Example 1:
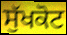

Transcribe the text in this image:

ਸੁੱਖਕੋਟ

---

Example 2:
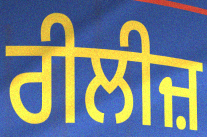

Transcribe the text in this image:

ਰੀਲੀਜ਼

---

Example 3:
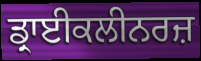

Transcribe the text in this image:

ਡ੍ਰਾਈਕਲੀਨਰਜ਼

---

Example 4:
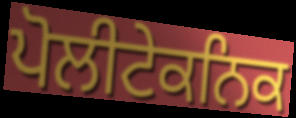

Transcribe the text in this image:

ਪੋਲੀਟੇਕਨਿਕ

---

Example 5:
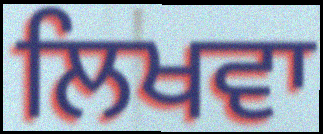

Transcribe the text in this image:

ਲਿਖਵਾ